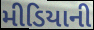
મીડિયાની